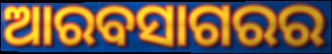
ଆରବସାଗରର